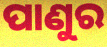
ପାଣୁର